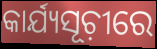
କାର୍ଯ୍ୟସୂଚ଼ୀରେ